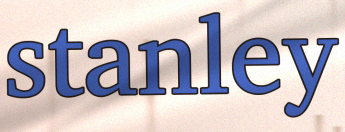
stanley